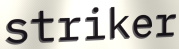
striker